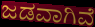
ಜಡವಾಗಿವೆ